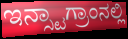
ಇನ್ಸ್ಟಾಗ್ರಾಂನಲ್ಲಿ